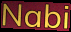
Nabi